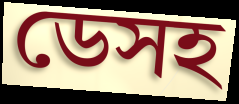
ডেসহ